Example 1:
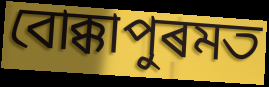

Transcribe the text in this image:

বোক্কাপুৰমত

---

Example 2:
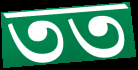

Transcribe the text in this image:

তত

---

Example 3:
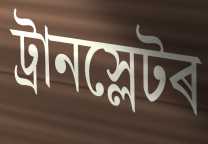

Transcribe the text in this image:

ট্ৰানস্লেটৰ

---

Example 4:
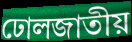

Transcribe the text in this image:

ঢোলজাতীয়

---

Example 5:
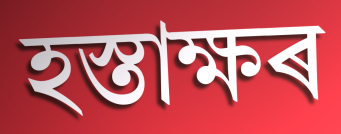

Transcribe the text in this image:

হস্তাক্ষৰ